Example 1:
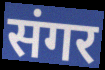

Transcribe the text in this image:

संगर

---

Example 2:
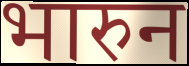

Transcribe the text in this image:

भारुन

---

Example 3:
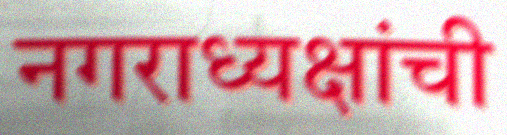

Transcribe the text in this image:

नगराध्यक्षांची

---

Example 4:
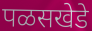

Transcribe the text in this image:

पळसखेडे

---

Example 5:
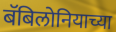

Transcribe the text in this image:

बॅबिलोनियाच्या